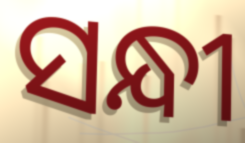
ସନ୍ଧୀ